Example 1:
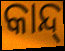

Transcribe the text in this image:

କାନ୍ଦ୍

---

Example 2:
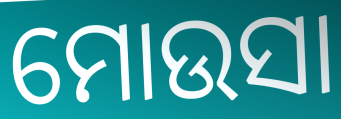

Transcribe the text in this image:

ମୋଉସା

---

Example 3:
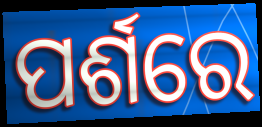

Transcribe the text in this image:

ପର୍ଶରେ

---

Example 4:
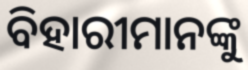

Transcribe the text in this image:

ବିହାରୀମାନଙ୍କୁ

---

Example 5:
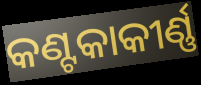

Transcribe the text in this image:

କଣ୍ଟକାକୀର୍ଣ୍ଣ